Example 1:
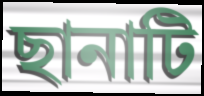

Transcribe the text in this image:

ছানাটি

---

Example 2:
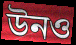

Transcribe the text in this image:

উনও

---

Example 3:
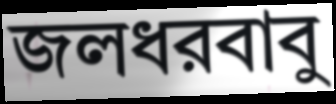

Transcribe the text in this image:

জলধরবাবু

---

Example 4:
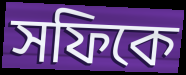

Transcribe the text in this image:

সফিকে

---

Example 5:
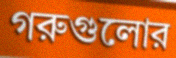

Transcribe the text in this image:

গরুগুলোর